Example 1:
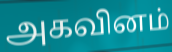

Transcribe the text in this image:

அகவினம்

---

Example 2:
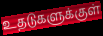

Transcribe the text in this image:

உதடுகளுக்குள்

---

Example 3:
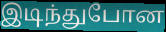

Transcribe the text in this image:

இடிந்துபோன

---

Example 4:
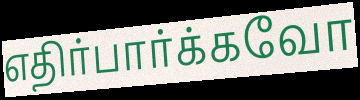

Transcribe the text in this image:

எதிர்பார்க்கவோ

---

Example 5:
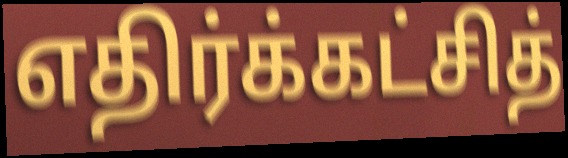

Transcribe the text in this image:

எதிர்க்கட்சித்